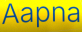
Aapna